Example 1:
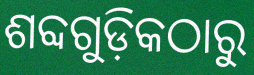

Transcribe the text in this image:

ଶବ୍ଦଗୁଡ଼ିକଠାରୁ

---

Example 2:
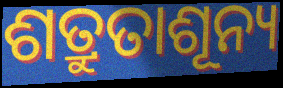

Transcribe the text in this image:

ଶତ୍ରୁତାଶୂନ୍ୟ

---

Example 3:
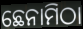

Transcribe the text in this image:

ଛେନାମିଠା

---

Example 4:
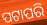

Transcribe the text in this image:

ପଟାପରି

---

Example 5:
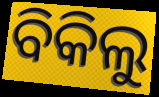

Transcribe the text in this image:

ବିକିଲୁ